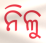
ନିଳୁ